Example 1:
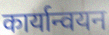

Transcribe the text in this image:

कार्यान्‍वयन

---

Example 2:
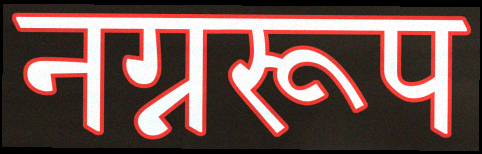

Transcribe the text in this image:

नग्नरूप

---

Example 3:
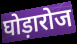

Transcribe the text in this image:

घोड़ारोज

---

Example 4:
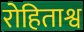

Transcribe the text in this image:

रोहिताश्व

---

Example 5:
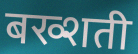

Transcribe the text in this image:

बख्शती